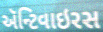
ઍન્ટિવાઇરસ